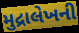
મુદ્રાલેખની